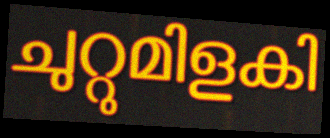
ചുറ്റുമിളകി